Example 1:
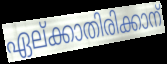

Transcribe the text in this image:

ഏല്ക്കാതിരിക്കാന്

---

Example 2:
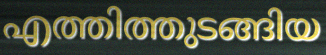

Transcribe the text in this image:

എത്തിത്തുടങ്ങിയ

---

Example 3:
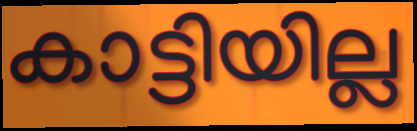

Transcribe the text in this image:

കാട്ടിയില്ല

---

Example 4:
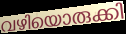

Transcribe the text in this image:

വഴിയൊരുക്കി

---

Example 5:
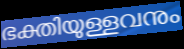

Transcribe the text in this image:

ഭക്തിയുള്ളവനും